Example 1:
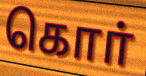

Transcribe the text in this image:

கொர்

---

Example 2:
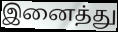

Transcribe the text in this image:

இனைத்து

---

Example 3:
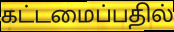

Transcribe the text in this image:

கட்டமைப்பதில்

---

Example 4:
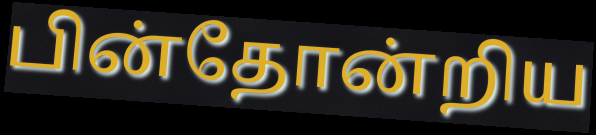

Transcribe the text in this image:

பின்தோன்றிய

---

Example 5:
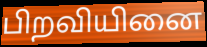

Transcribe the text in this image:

பிறவியினை